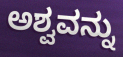
ಅಶ್ವವನ್ನು